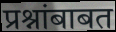
प्रश्नांबाबत